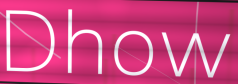
Dhow